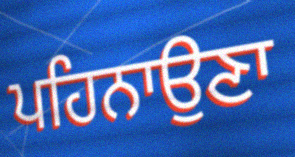
ਪਹਿਨਾਉਣਾ